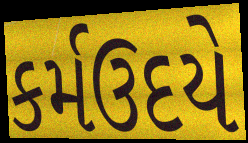
કર્મઉદયે